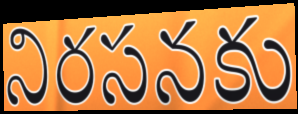
నిరసనకు